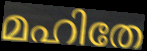
മഹിതേ